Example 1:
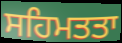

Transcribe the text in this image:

ਸਹਿਮਤਤਾ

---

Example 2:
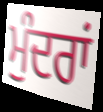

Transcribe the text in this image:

ਮੁੰਦਰਾਂ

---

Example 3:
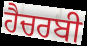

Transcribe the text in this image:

ਹੈਚਰਬੀ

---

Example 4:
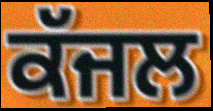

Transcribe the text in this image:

ਕੱਜਲ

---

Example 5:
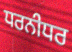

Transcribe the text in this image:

ਧਰਨੀਧਰ